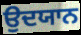
ਉਦਯਾਨ